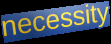
necessity